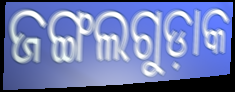
ଜଙ୍ଗଲଗୁଡ଼ାକ